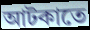
আটকাতে